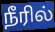
நீரில்